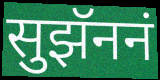
सुझॅननं